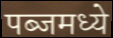
पब्जमध्ये